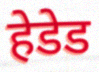
हेडेड